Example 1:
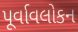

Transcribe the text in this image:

પૂર્વાવલોકન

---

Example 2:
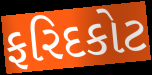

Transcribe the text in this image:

ફરિદકોટ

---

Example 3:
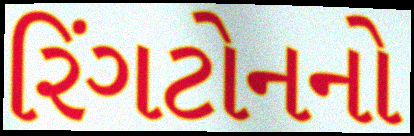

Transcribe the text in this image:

રિંગટોનનો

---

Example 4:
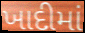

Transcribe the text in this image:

ખાદીમાં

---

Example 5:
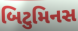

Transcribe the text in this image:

બિટુમિનસ